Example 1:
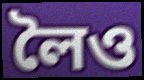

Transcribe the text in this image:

লৈও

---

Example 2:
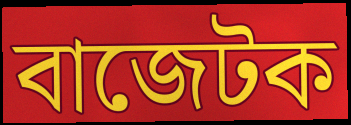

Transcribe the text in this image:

বাজেটক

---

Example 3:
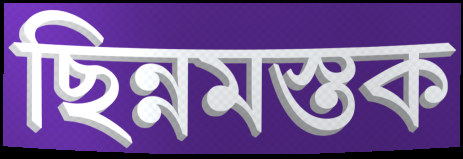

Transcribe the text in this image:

ছিন্নমস্তক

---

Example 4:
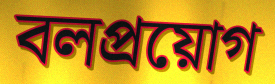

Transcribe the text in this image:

বলপ্ৰয়োগ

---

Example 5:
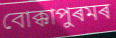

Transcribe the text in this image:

বোক্কাপুৰমৰ